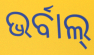
ଭର୍ବାଲ୍